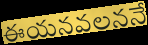
ఈయనవలననే